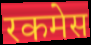
रकमेस